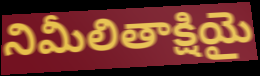
నిమీలితాక్షియై